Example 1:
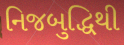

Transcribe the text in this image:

નિજબુદ્ધિથી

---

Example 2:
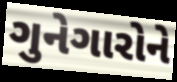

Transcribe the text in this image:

ગુનેગારોને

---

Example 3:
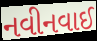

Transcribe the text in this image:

નવીનવાઈ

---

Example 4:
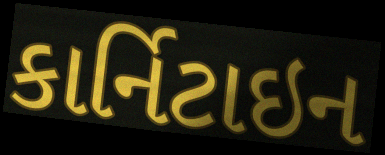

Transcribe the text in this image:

કાર્નિટાઇન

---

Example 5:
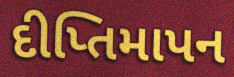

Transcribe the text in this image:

દીપ્તિમાપન